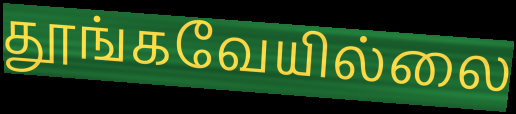
தூங்கவேயில்லை